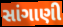
સાંગાણી